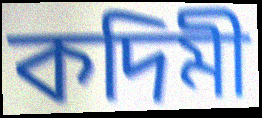
কদিমী